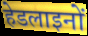
हेडलाइनों